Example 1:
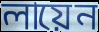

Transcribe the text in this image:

লায়েন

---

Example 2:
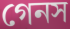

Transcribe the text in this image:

গেনস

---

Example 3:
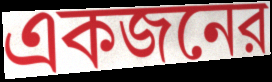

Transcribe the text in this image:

একজনের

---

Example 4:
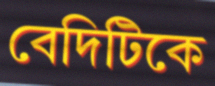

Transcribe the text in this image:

বেদিটিকে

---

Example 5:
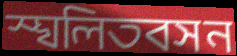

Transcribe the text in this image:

স্খলিতবসন